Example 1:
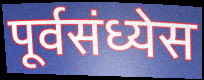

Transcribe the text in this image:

पूर्वसंध्येस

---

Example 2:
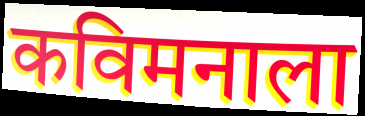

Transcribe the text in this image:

कविमनाला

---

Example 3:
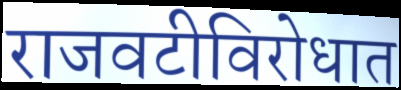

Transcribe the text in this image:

राजवटीविरोधात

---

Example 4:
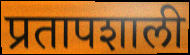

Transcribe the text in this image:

प्रतापशाली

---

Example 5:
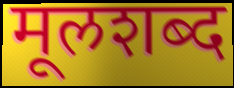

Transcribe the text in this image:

मूलशब्द